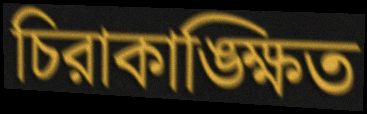
চিরাকাঙ্ক্ষিত